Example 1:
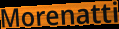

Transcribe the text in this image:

Morenatti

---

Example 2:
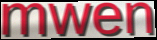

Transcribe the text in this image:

mwen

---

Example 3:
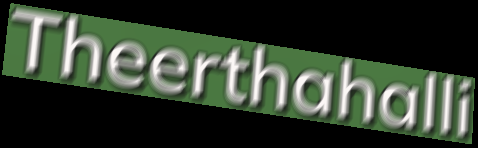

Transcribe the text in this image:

Theerthahalli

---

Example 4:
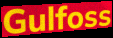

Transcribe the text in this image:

Gulfoss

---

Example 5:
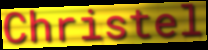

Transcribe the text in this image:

Christel